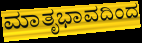
ಮಾತೃಭಾವದಿಂದ